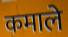
कमाले